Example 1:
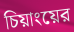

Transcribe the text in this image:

চিয়াংয়ের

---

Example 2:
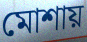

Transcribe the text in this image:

মোশায়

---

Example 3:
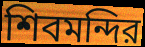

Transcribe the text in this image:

শিবমন্দির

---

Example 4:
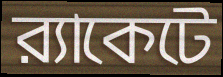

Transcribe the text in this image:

র‍্যাকেটে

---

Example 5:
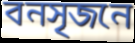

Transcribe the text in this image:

বনসৃজনে